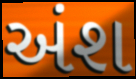
અંશ